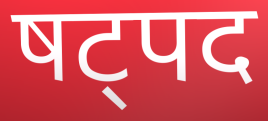
षट्पद